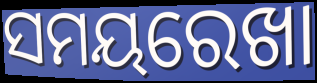
ସମୟରେଖା